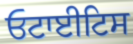
ਓਟਾਈਟਿਸ